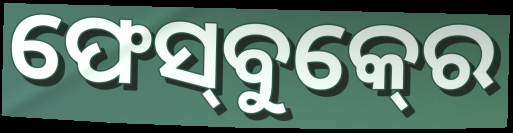
ଫେସ୍‍ବୁକ୍‍ରେ